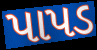
પાપડ